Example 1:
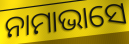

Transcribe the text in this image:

ନାମାଭାସେ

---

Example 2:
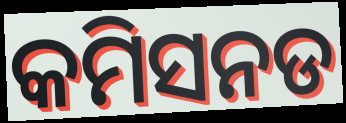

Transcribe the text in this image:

କମିସନଡ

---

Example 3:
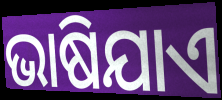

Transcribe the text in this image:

ଭାଷିଯାଏ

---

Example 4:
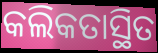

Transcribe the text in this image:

କଲିକତାସ୍ଥିତ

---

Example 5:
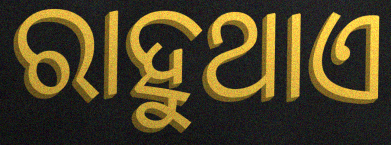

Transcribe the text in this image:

ରାହୁଥାଏ